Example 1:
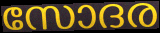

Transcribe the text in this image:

സോദര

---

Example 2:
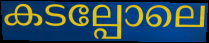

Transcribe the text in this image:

കടല്പോലെ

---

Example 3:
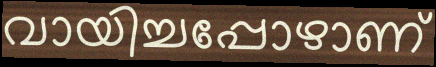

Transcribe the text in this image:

വായിച്ചപ്പോഴാണ്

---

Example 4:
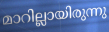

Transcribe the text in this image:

മാറില്ലായിരുന്നു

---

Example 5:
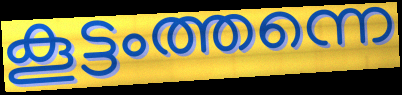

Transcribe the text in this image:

കൂട്ടംത്തന്നെ